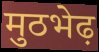
मुठभेढ़